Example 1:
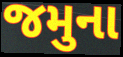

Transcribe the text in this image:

જમુના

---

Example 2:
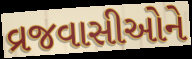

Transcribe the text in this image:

વ્રજવાસીઓને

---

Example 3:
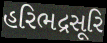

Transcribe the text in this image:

હરિભદ્રસૂરિ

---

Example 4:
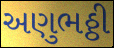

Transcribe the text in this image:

અણુભઠ્ઠી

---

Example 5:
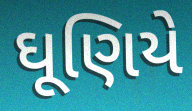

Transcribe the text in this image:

ઘૂણિયે